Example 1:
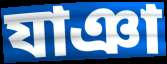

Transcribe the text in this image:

যাঞা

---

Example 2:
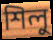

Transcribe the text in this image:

শিলু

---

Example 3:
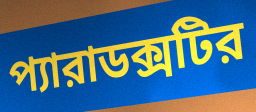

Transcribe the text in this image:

প্যারাডক্সটির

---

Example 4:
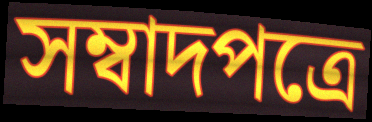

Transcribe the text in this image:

সম্বাদপত্রে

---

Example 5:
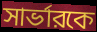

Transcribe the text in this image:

সার্ভারকে